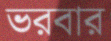
ভরবার